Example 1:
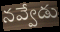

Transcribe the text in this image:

నవ్వేడు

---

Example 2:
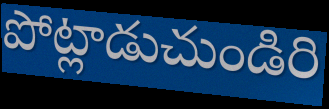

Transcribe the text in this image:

పోట్లాడుచుండిరి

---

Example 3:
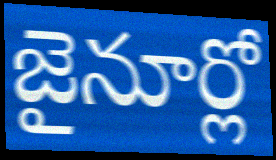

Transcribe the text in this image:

జైనూర్లో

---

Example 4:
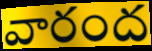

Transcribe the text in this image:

వారంద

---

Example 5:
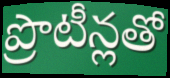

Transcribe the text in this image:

ప్రొటీన్లతో